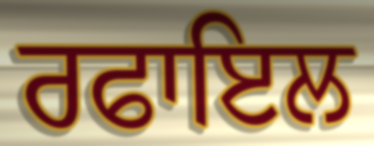
ਰਫਾਇਲ